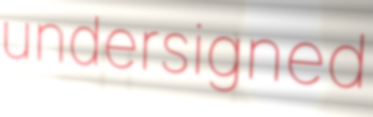
undersigned